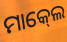
ମାକ୍‍ଲେ